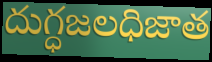
దుగ్ధజలధిజాత